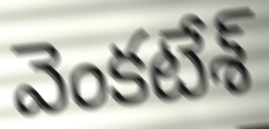
వెంకటేశ్